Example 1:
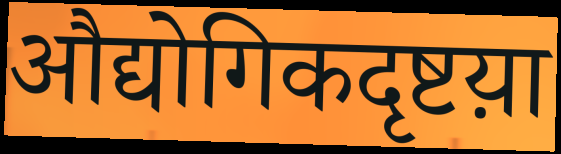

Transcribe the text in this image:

औद्योगिकदृष्टय़ा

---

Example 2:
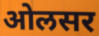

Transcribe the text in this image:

ओलसर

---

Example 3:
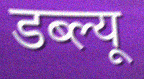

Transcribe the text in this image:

डब्ल्यू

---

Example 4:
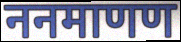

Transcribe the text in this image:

ननमाणण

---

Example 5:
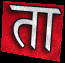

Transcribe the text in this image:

ता